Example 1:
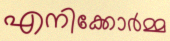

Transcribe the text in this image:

എനിക്കോർമ്മ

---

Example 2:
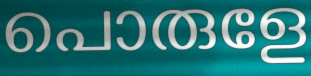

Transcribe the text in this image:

പൊരുളേ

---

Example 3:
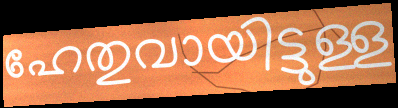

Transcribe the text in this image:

ഹേതുവായിട്ടുള്ള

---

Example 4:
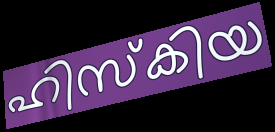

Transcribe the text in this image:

ഹിസ്കിയ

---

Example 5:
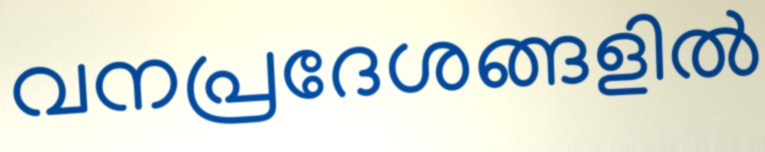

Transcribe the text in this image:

വനപ്രദേശങ്ങളിൽ